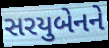
સરયુબેનને